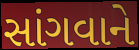
સાંગવાને